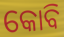
କୋବି